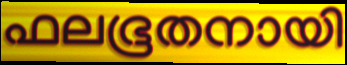
ഫലഭൂതനായി